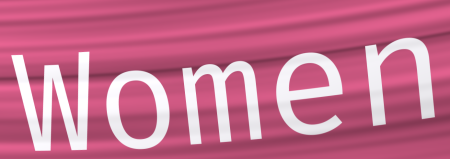
Women